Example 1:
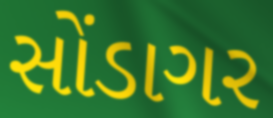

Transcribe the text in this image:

સોંડાગર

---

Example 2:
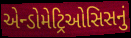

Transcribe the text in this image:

એન્ડોમેટ્રિઓસિસનું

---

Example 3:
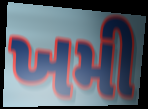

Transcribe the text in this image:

ખમી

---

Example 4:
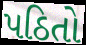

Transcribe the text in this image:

પઠિતો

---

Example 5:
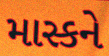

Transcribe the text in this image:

માસ્કને